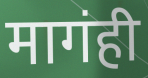
मागंही